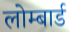
लोम्बार्ड